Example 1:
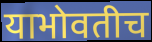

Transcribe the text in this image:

याभोवतीच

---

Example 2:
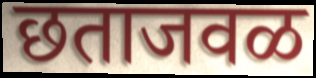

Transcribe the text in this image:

छताजवळ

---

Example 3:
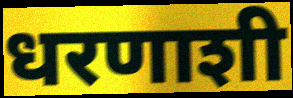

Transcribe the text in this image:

धरणाशी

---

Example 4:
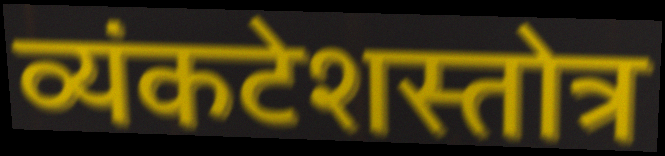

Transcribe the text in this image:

व्यंकटेशस्तोत्र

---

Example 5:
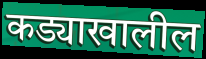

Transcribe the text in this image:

कड्याखालील